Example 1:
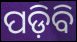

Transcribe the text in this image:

ପଡ଼ିବି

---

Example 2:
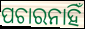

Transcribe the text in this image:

ପଚାରନାହିଁ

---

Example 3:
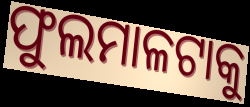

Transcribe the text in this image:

ଫୁଲମାଳଟାକୁ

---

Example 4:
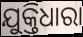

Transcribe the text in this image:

ଯୁକ୍ତିଧାରା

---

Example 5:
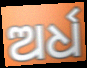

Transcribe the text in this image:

ଅର୍ଧ